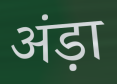
अंड़ा